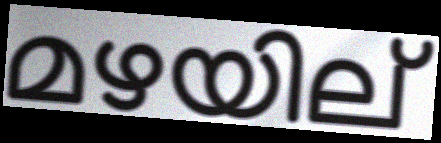
മഴയില്